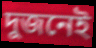
দুজনেই